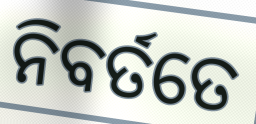
ନିବର୍ତତେ